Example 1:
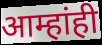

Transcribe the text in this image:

आम्हांही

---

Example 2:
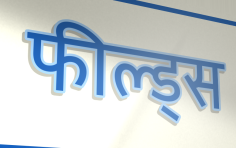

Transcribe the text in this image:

फील्ड्स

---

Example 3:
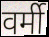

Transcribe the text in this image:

वर्मी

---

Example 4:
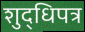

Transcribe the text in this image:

शुद्धिपत्र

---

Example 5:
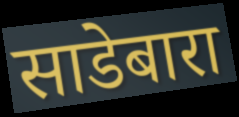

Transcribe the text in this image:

साडेबारा